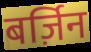
बर्ज़िन